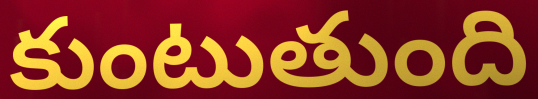
కుంటుతుంది